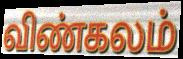
விண்கலம்